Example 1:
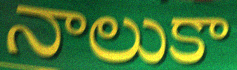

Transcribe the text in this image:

నాలుకా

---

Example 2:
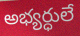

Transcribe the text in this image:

అభ్యర్ధులే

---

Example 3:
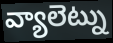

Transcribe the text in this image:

వ్యాలెట్ను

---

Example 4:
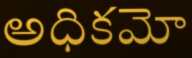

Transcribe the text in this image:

అధికమో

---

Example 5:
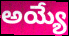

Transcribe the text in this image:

అయ్యే